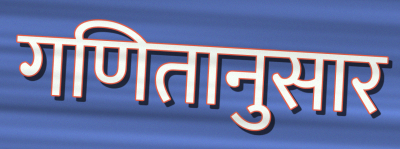
गणितानुसार